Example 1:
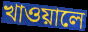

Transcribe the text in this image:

খাওয়ালে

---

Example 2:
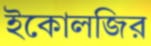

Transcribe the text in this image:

ইকোলজির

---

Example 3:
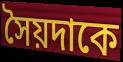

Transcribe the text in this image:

সৈয়দাকে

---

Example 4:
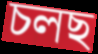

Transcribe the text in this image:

চলছ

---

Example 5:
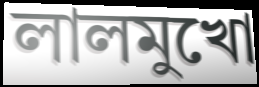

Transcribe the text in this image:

লালমুখো